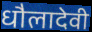
धौलादेवी